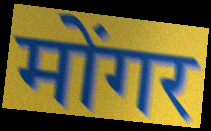
मोंगर